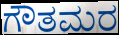
ಗೌತಮರ